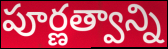
పూర్ణత్వాన్ని